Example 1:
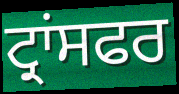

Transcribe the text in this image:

ਟ੍ਰਾਂਸਫਰ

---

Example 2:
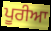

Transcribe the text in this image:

ਪੂਰੀਆ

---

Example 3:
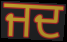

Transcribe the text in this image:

ਜਦ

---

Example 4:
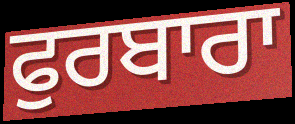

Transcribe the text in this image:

ਫੁਰਬਾਰਾ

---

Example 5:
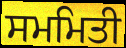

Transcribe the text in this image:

ਸਮਮਿਤੀ